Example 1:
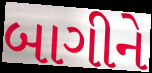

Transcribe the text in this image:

બાગીને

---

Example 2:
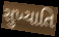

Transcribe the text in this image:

સુખ્યાતિ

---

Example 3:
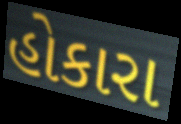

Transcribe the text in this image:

હોકારા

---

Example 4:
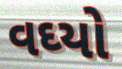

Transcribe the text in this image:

વઘ્યો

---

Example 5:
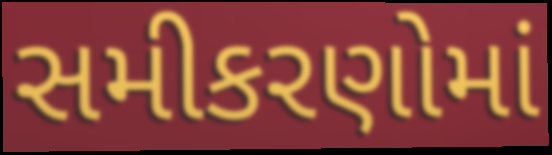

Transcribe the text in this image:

સમીકરણોમાં